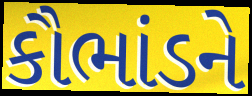
કૌભાંડને